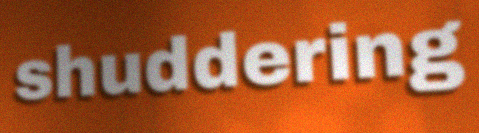
shuddering